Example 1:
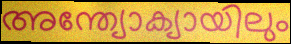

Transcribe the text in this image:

അന്ത്യോക്യായിലും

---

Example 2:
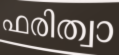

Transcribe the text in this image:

ഫരിത്വാ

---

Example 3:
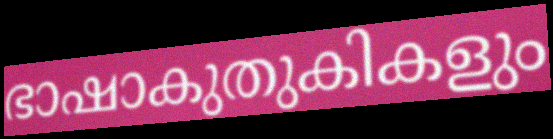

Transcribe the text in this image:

ഭാഷാകുതുകികളും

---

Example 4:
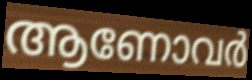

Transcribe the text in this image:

ആണോവർ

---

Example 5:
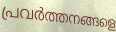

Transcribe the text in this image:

പ്രവർത്തനങ്ങളെ